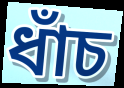
ধাঁচ